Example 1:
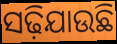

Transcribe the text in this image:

ସଢ଼ିଯାଉଛି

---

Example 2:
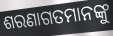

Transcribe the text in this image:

ଶରଣାଗତମାନଙ୍କୁ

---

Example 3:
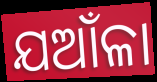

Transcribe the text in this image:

ଯଆଁଳା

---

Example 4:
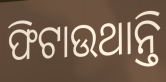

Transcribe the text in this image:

ଫିଟାଉଥାନ୍ତି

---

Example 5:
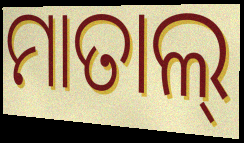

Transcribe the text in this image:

ମାତାଲ୍